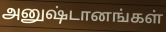
அனுஷ்டானங்கள்